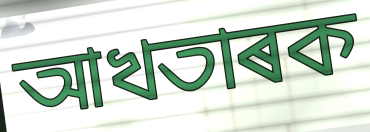
আখতাৰক